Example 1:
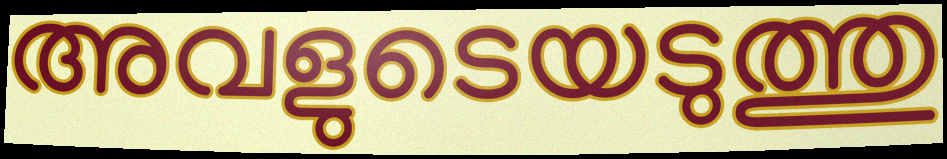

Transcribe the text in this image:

അവളുടെയടുത്തു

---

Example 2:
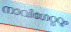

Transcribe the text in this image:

നാവിഗേറ്ററും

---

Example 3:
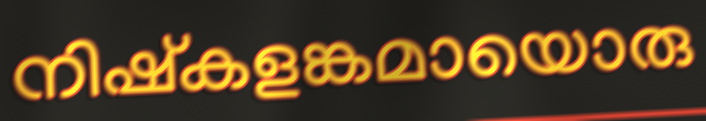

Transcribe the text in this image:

നിഷ്കളങ്കമായൊരു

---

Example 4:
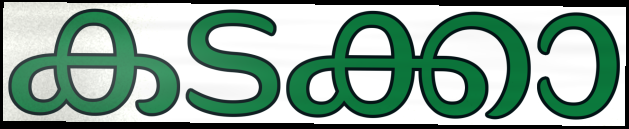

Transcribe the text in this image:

കടക്കാ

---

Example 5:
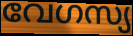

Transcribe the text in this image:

വേഗസ്യ